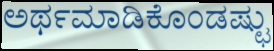
ಅರ್ಥಮಾಡಿಕೊಂಡಷ್ಟು